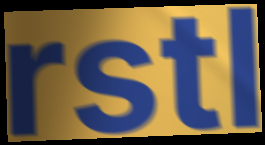
rstl